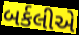
બર્કલીએ